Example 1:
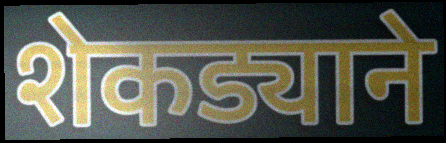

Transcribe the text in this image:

शेकड्याने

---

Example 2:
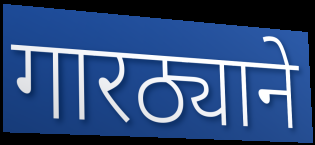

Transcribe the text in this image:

गारठ्याने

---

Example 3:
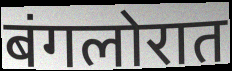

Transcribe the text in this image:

बंगलोरात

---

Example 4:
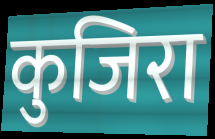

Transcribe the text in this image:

कुजिरा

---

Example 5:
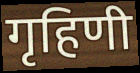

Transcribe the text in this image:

गृहिणी